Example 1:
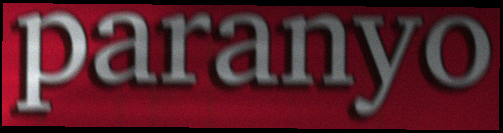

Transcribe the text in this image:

paranyo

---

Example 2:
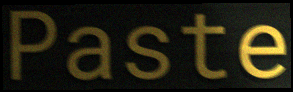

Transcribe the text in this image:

Paste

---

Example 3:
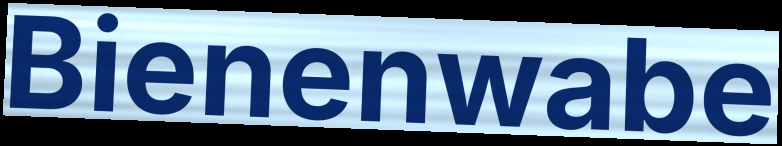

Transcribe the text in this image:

Bienenwabe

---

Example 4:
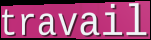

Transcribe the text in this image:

travail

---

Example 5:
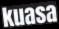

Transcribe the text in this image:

kuasa